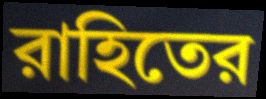
রাহিতের